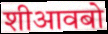
शीआवबो